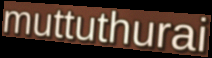
muttuthurai